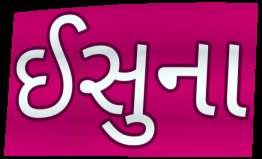
ઈસુના